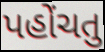
પહોંચતુ